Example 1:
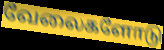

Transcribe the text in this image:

வேலைகளோடு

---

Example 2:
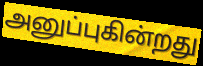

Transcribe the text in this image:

அனுப்புகின்றது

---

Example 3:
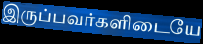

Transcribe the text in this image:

இருப்பவர்களிடையே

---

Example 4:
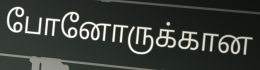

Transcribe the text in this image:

போனோருக்கான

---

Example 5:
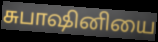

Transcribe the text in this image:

சுபாஷினியை